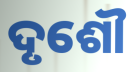
ଦୃଶୌ